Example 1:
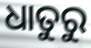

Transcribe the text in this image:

ଧାତୁରୁ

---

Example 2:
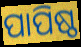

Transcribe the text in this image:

ପାପିଷ୍ଠ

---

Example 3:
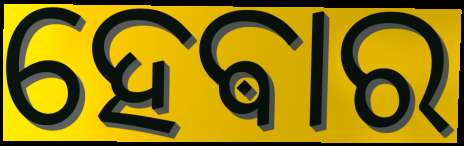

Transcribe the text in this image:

ହେଵାର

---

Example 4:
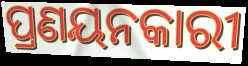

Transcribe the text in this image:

ପ୍ରଣୟନକାରୀ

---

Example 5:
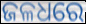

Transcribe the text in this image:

ଜଳଧରେ